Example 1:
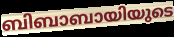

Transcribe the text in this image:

ബിബാബായിയുടെ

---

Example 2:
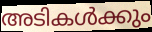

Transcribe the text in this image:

അടികൾക്കും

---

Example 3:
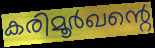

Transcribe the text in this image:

കരിമൂർഖന്റെ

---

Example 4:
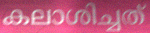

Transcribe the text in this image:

കലാശിച്ചത്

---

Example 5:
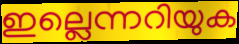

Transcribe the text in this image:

ഇല്ലെന്നറിയുക